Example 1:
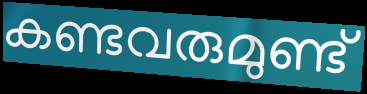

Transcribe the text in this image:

കണ്ടവരുമുണ്ട്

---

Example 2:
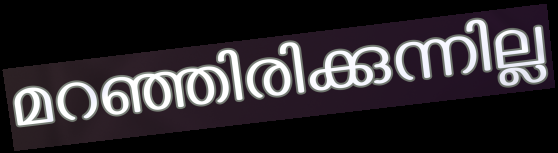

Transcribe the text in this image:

മറഞ്ഞിരിക്കുന്നില്ല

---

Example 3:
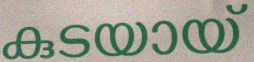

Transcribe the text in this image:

കുടയായ്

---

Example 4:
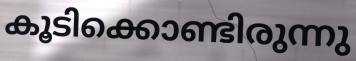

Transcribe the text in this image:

കൂടിക്കൊണ്ടിരുന്നു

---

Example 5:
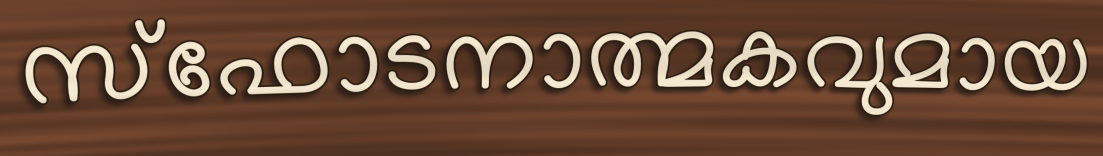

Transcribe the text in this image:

സ്ഫോടനാത്മകവുമായ